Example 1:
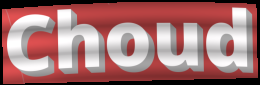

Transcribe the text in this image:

Choud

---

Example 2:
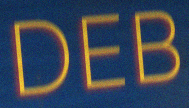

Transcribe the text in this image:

DEB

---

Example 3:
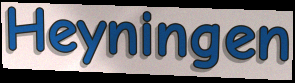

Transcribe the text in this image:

Heyningen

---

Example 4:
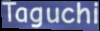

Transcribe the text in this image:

Taguchi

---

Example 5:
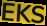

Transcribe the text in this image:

EKS